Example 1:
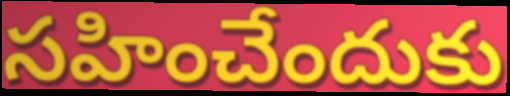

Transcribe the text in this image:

సహించేందుకు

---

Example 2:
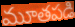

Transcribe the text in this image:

మూతపడి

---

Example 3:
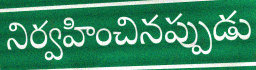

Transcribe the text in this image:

నిర్వహించినప్పుడు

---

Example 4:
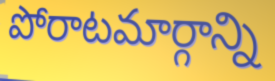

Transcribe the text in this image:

పోరాటమార్గాన్ని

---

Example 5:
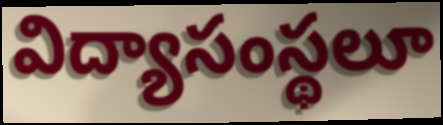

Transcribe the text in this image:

విద్యాసంస్థలూ